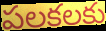
పలకలకు